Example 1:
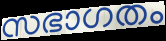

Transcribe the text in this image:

സഭാഗതം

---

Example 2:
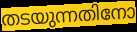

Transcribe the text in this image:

തടയുന്നതിനോ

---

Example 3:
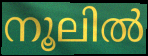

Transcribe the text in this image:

നൂലിൽ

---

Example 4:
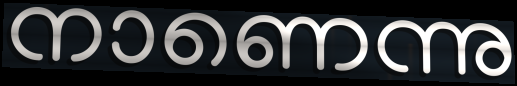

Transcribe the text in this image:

നാണെന്നു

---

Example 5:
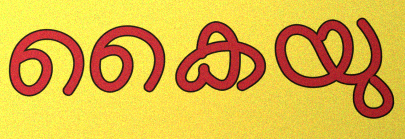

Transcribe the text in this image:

കൈയു